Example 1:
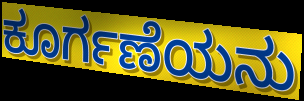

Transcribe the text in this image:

ಕೂರ್ಗಣೆಯನು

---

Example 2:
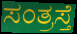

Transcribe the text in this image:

ಸಂತ್ರಸ್ತೆ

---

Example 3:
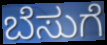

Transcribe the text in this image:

ಬೆಸುಗೆ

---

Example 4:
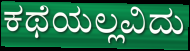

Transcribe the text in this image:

ಕಥೆಯಲ್ಲವಿದು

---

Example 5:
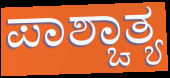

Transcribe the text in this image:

ಪಾಶ್ಚಾತ್ಯ